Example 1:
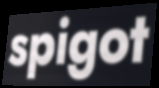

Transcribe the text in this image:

spigot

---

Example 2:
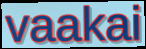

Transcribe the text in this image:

vaakai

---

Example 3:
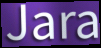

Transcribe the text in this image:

Jara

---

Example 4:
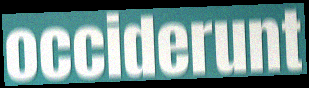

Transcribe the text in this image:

occiderunt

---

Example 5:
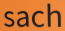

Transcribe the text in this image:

sach